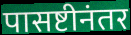
पासष्टीनंतर